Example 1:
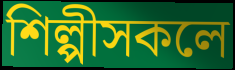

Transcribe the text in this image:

শিল্পীসকলে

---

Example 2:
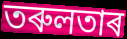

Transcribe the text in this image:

তৰুলতাৰ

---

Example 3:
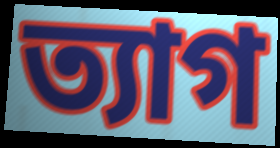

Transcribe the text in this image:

ত্যাগ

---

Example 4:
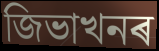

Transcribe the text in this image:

জিভাখনৰ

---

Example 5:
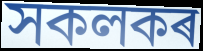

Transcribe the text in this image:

সকলকৰ